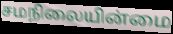
சமநிலையின்மை